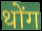
थोंग